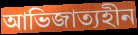
আভিজাত্যহীন